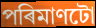
পৰিমাণটো